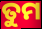
ତୁମ